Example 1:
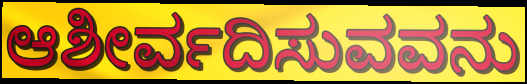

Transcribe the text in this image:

ಆಶೀರ್ವದಿಸುವವನು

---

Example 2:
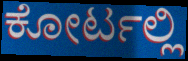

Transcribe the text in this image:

ಕೋರ್ಟಲ್ಲಿ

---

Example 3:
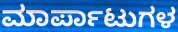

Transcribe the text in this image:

ಮಾರ್ಪಾಟುಗಳ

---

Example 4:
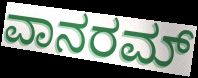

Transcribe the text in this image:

ವಾನರಮ್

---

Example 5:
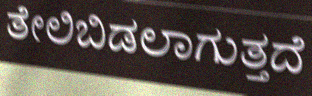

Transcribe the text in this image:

ತೇಲಿಬಿಡಲಾಗುತ್ತದೆ